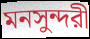
মনসুন্দরী